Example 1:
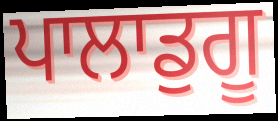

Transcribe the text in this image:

ਪਾਲਾਡੁਗੂ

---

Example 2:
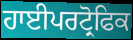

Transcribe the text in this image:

ਹਾਈਪਰਟ੍ਰੋਫਿਕ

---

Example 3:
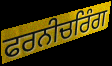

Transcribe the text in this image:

ਫਰਨੀਚਰਿੰਗ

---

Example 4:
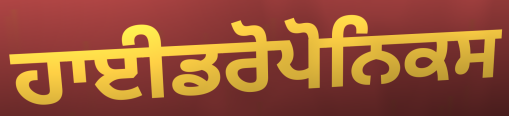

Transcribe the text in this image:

ਹਾਈਡਰੋਪੋਨਿਕਸ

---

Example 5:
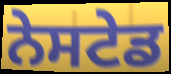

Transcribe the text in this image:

ਨੇਸਟੇਡ